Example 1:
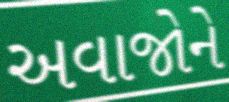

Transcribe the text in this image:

અવાજોને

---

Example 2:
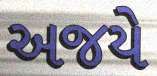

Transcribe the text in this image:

અજયે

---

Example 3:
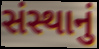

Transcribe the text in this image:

સંસ્થાનું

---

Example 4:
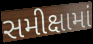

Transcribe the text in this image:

સમીક્ષામાં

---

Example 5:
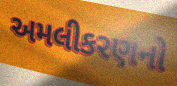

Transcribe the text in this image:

અમલીકરણનો